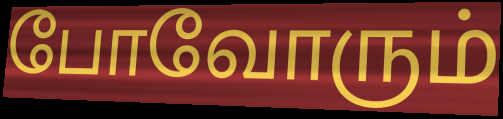
போவோரும்